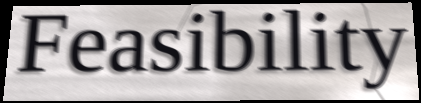
Feasibility